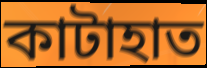
কাটাহাত